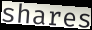
shares